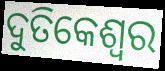
ଦୁତିକେଶ୍ୱର